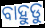
ବାହୁଡୁ